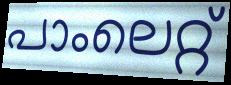
പാംലെറ്റ്